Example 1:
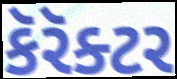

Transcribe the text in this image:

કૅરૅક્ટર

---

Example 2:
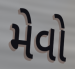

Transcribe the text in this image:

મેવો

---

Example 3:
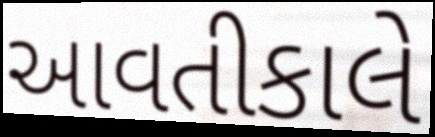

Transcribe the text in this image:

આવતીકાલે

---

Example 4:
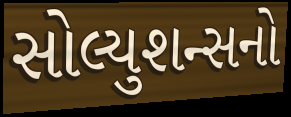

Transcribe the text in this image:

સોલ્યુશન્સનો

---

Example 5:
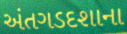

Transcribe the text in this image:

અંતગડદશાના